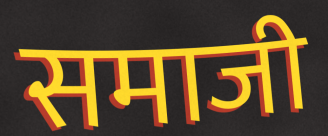
समाजी